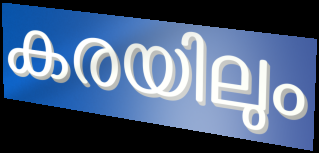
കരയിലും